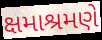
ક્ષમાશ્રમણે